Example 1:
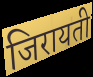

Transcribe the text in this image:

जिरायती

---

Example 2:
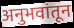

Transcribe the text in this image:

अनुभवांतून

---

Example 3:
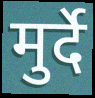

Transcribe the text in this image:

मुर्दे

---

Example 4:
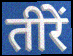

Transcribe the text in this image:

तीरें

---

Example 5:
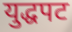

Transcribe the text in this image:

युद्धपट